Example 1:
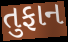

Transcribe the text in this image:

તુફાન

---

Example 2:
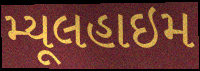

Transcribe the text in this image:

મ્યૂલહાઇમ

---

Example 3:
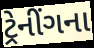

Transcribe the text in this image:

ટ્રેનીંગના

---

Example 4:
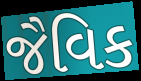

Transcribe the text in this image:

જૈવિક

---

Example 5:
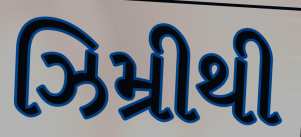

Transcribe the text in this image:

ઝિમ્રીથી